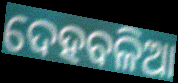
ଦେହବଳିଆ